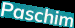
Paschim